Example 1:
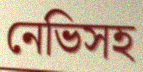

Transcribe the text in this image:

নেভিসহ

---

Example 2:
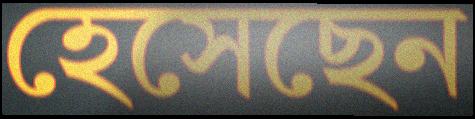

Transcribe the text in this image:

হেসেছেন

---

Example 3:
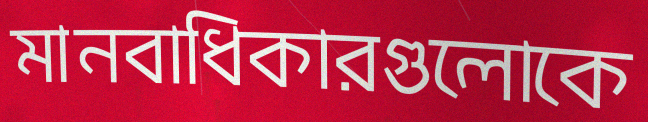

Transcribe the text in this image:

মানবাধিকারগুলোকে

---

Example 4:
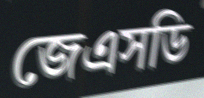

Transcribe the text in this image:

জেএসডি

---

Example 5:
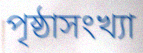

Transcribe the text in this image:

পৃষ্ঠাসংখ্যা